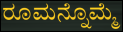
ರೂಮನ್ನೊಮ್ಮೆ